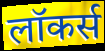
लॉकर्स